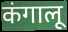
कंगालू